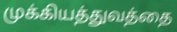
முக்கியத்துவத்தை